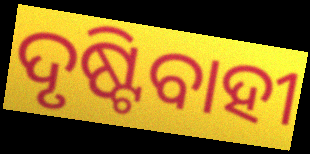
ଦୃଷ୍ଟିବାହୀ